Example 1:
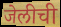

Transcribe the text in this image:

जेलीची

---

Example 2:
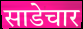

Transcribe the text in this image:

साडेचार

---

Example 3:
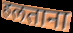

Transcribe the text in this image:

हलताना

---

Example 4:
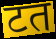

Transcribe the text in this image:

टत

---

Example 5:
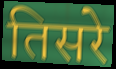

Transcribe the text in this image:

तिसरे